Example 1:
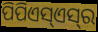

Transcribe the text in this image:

ପିପିଏସ୍ଏସ୍‌ର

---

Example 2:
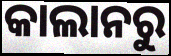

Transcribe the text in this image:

କାଲାନରୁ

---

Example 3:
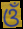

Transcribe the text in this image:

ଓଁ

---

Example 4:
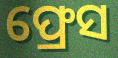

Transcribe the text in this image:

ଫ୍ରେସ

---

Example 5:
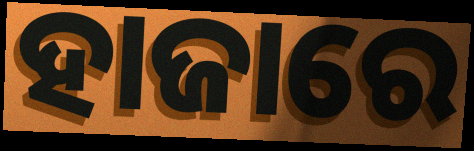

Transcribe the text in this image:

ହାଜାରେ